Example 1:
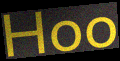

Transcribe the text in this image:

Hoo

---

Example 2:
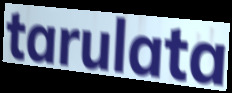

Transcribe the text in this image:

tarulata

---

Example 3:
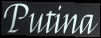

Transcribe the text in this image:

Putina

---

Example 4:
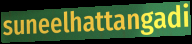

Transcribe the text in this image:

suneelhattangadi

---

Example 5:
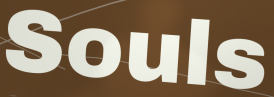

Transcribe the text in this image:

Souls